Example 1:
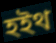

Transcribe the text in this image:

হইথ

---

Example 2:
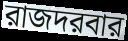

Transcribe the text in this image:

রাজদরবার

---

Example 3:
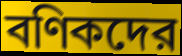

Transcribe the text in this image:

বণিকদের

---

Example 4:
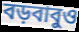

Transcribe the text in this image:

বড়বাবুও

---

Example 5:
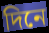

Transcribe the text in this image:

দিনে